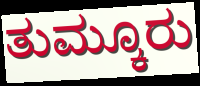
ತುಮ್ಕೂರು